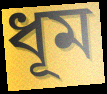
ধূম